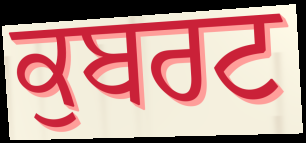
ਕੁਬਰਟ